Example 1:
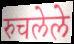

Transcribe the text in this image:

रुचलेले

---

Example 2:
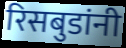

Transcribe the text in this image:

रिसबुडांनी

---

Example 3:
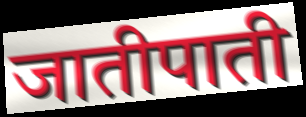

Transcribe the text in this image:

जातीपाती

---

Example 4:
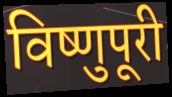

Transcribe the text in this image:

विष्णुपूरी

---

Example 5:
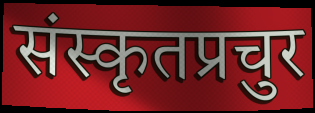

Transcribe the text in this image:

संस्कृतप्रचुर